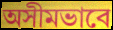
অসীমভাবে